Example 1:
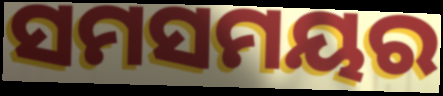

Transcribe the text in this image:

ସମସମୟର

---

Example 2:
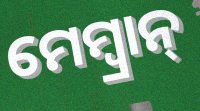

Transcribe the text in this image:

ମେମ୍ବ୍ରାନ୍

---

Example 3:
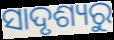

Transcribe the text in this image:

ସାଦୃଶ୍ୟରୁ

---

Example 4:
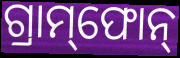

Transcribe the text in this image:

ଗ୍ରାମ୍‌ଫୋନ୍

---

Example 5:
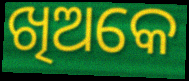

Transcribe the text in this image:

ଖିଅକେ